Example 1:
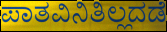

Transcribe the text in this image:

ಪಾತವಿನಿತಿಲ್ಲದಡೆ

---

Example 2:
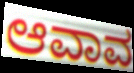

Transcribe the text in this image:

ಆವಾವ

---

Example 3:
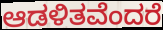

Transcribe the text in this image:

ಆಡಳಿತವೆಂದರೆ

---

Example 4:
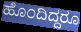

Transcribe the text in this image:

ಹೊಂದಿದ್ದರೂ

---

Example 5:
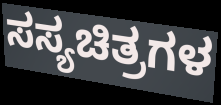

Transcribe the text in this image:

ಸಸ್ಯಚಿತ್ರಗಳ